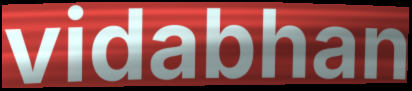
vidabhan